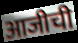
आजीची